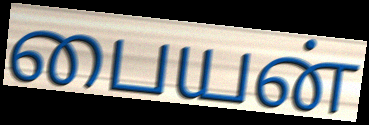
பையன்